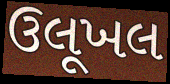
ઉલૂખલ